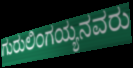
ಗುರುಲಿಂಗಯ್ಯನವರು